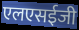
एलएसईजी